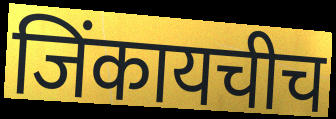
जिंकायचीच